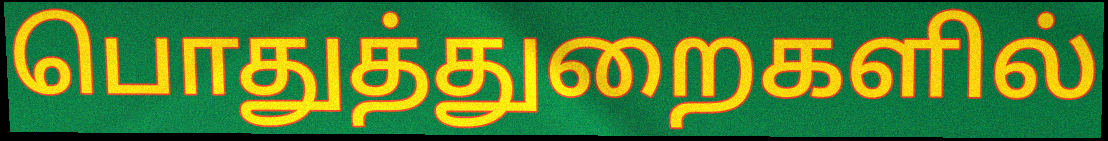
பொதுத்துறைகளில்